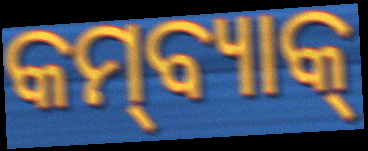
କମ୍‌ବ୍ୟାକ୍